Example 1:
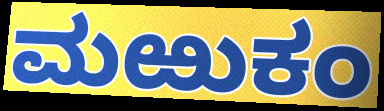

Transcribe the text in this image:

ಮಱುಕಂ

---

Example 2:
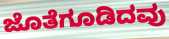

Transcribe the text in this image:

ಜೊತೆಗೂಡಿದವು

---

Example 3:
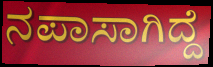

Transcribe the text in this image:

ನಪಾಸಾಗಿದ್ದೆ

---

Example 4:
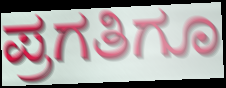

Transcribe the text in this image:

ಪ್ರಗತಿಗೂ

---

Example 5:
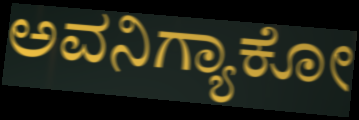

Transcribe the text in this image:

ಅವನಿಗ್ಯಾಕೋ